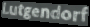
Lutgendorf